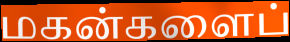
மகன்களைப்